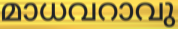
മാധവറാവു